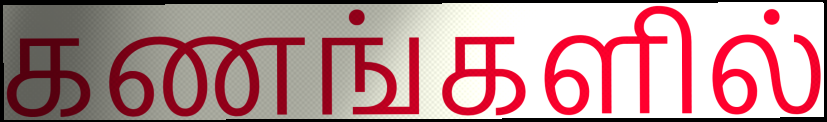
கணங்களில்